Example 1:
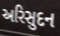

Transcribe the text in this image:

અરિસુદન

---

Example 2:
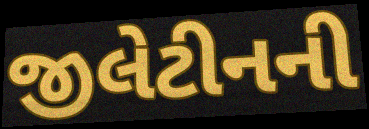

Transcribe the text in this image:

જીલેટીનની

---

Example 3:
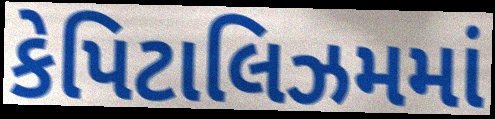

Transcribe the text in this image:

કેપિટાલિઝમમાં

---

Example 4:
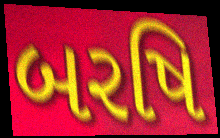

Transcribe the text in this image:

બરષિ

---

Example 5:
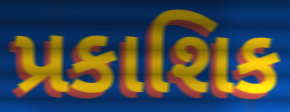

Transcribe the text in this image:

પ્રકાશિક